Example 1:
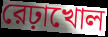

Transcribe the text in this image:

রেঢ়াখোল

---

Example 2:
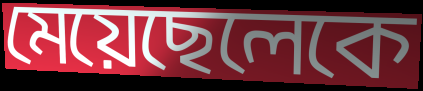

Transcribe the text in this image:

মেয়েছেলেকে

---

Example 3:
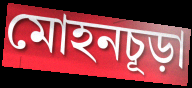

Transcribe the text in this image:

মোহনচূড়া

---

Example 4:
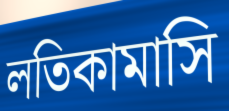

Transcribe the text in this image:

লতিকামাসি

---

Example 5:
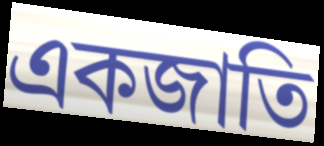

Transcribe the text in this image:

একজাতি